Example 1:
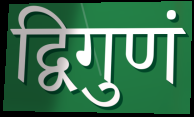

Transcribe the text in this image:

द्विगुणं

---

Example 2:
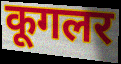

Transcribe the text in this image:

कूगलर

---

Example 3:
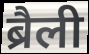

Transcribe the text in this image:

ब्रैली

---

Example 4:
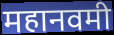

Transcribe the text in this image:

महानवमी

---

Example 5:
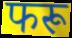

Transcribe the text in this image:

फरू